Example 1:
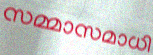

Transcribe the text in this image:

സമ്മാസമാധി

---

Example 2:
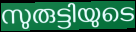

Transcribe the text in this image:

സുരുട്ടിയുടെ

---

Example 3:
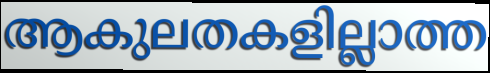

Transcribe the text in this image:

ആകുലതകളില്ലാത്ത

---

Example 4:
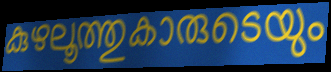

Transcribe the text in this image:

കുഴലൂത്തുകാരുടെയും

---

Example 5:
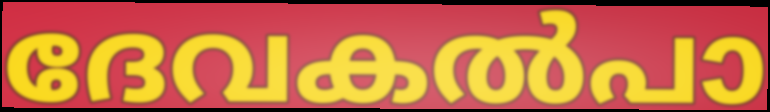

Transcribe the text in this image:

ദേവകൽപാ